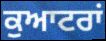
ਕੁਆਟਰਾਂ